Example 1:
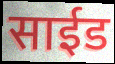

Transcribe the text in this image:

साईड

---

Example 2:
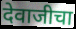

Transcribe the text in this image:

देवाजीचा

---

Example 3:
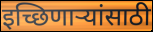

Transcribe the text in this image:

इच्छिणाऱ्यांसाठी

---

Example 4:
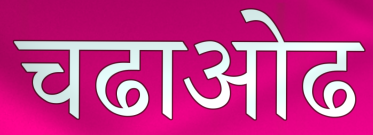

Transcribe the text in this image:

चढाओढ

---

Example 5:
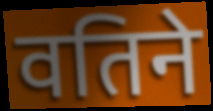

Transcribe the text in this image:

वतिने